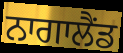
ਨਾਗਾਲੈਂਡ